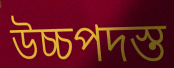
উচ্চপদস্ত